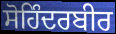
ਸੋਹਿੰਦਰਬੀਰ